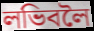
লভিবলৈ